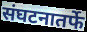
संघटनातर्फे